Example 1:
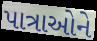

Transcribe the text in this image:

પાત્રાઓને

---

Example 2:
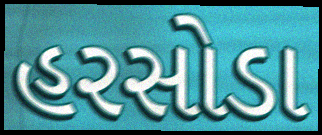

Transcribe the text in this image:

હરસોડા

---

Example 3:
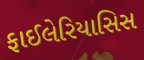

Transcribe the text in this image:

ફાઈલેરિયાસિસ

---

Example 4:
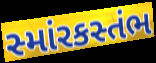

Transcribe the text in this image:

સ્માંરકસ્તંભ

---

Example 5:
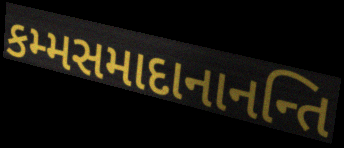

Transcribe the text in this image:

કમ્મસમાદાનાનન્તિ